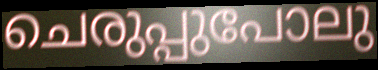
ചെരുപ്പുപോലു